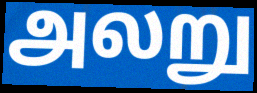
அலறு